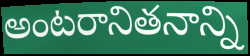
అంటరానితనాన్ని